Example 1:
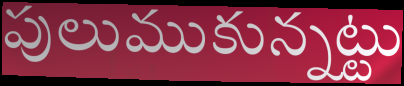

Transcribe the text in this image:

పులుముకున్నట్టు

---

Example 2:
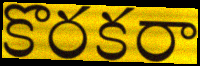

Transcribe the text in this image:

కొరకరా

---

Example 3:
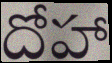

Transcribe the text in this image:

దోహా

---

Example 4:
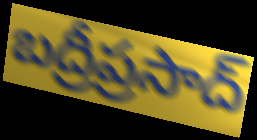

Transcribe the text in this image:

బద్రీప్రసాద్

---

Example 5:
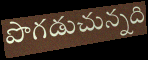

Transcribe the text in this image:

పొగడుచున్నది